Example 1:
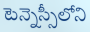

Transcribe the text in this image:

టెన్నెస్సీలోని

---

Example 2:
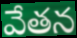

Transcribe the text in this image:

వేతన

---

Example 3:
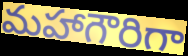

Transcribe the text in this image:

మహాగౌరిగా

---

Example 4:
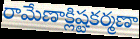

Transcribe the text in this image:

రామేణాక్లిష్టకర్మణా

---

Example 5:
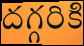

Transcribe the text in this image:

దగ్గరికి